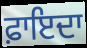
ਫ਼ਾਇਦਾ